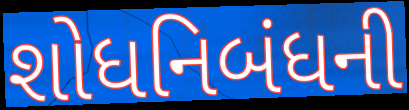
શોધનિબંધની